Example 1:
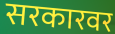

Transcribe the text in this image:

सरकारवर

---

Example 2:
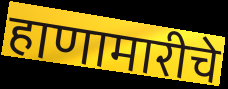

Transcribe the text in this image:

हाणामारीचे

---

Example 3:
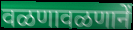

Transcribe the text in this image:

वळणावळणानें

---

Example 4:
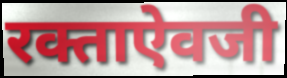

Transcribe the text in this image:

रक्ताऐवजी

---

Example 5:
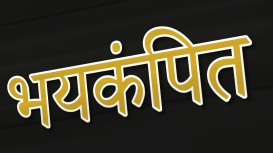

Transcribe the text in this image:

भयकंपित